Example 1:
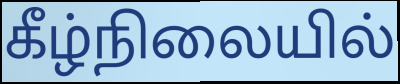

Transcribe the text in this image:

கீழ்நிலையில்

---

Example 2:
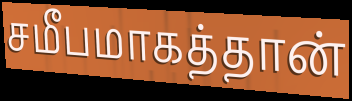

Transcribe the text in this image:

சமீபமாகத்தான்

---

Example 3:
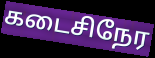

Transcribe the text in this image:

கடைசிநேர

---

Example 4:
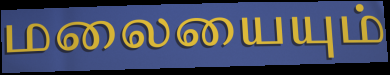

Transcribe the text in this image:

மலையையும்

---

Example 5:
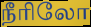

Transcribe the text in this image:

நீரிலோ